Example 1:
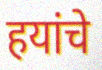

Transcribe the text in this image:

हयांचे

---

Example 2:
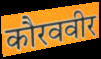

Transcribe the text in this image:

कौरववीर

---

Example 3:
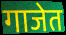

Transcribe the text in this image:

गाजेत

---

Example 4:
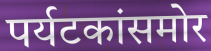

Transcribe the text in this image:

पर्यटकांसमोर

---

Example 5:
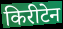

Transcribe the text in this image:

किरीटेन